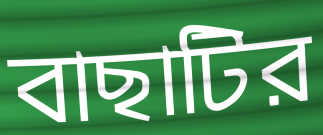
বাছাটির